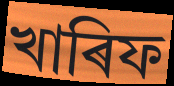
খাৰিফ